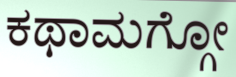
ಕಥಾಮಗ್ಗೋ